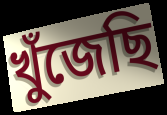
খুঁজেছি